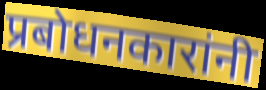
प्रबोधनकारांनी